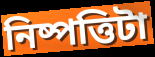
নিষ্পত্তিটা